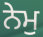
ਨੇਮੁ